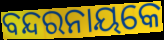
ବନ୍ଦରନାୟକେ